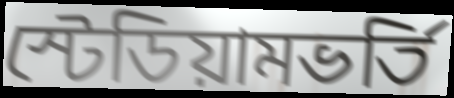
স্টেডিয়ামভর্তি